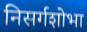
निसर्गशोभा